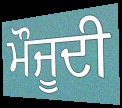
ਮੌਜੂਦੀ